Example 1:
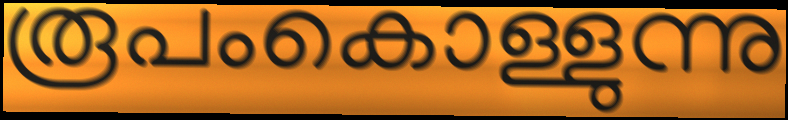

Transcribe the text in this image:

രൂപംകൊള്ളുന്നു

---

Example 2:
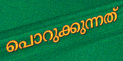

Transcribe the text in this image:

പൊറുക്കുന്നത്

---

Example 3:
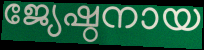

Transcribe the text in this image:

ജ്യേഷ്ഠനായ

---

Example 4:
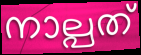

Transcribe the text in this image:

നാല്പത്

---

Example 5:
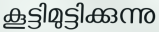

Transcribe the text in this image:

കൂട്ടിമുട്ടിക്കുന്നു